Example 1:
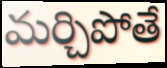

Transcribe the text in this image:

మర్చిపోతే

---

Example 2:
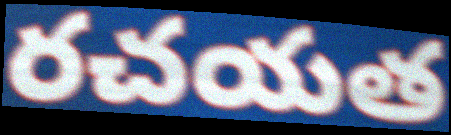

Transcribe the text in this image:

రచయత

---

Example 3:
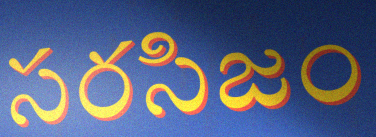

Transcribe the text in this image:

సరసిజం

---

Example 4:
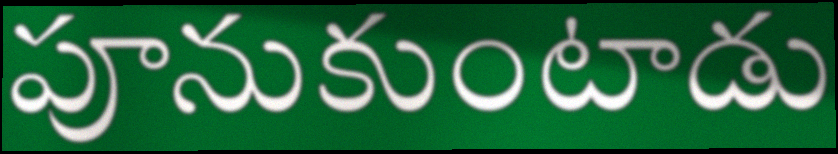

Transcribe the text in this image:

పూనుకుంటాడు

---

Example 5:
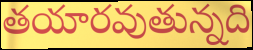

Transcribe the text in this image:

తయారవుతున్నది